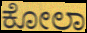
ಕೋಲಾ